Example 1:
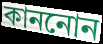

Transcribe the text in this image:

কাননোন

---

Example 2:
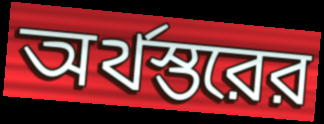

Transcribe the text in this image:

অর্থস্তরের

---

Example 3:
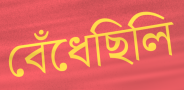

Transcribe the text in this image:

বেঁধেছিলি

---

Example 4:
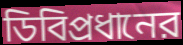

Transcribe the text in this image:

ডিবিপ্রধানের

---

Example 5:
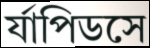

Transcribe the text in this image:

র্যাপিডসে